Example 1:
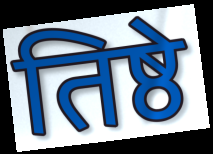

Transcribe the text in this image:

तिष्ठे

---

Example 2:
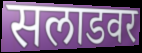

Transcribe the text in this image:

सलाडवर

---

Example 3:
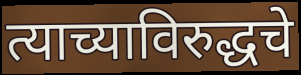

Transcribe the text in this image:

त्याच्याविरुद्धचे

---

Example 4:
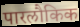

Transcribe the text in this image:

पारलौकिक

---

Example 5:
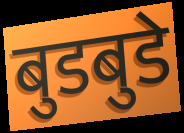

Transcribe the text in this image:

बुडबुडे